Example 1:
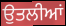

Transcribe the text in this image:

ਉਤਲੀਆਂ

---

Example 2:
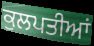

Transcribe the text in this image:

ਕੁਲਪਤੀਆਂ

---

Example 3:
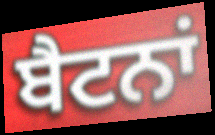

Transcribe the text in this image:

ਬੈਟਨਾਂ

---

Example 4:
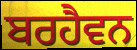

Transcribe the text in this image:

ਬਰਹੈਵਨ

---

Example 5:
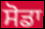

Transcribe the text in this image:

ਸੋਡਾ